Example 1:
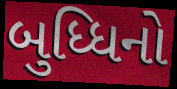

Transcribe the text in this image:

બુધ્ધિનો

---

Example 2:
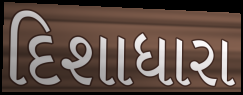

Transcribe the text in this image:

દિશાધારા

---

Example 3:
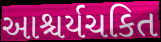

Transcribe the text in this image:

આશ્ચર્યચકિત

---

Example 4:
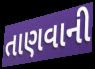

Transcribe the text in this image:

તાણવાની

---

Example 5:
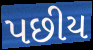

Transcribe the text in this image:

પછીય